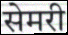
सेमरी